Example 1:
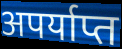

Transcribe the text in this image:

अपर्याप्त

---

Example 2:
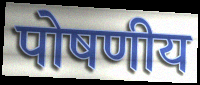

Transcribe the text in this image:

पोषणीय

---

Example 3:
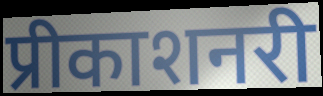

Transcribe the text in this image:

प्रीकाशनरी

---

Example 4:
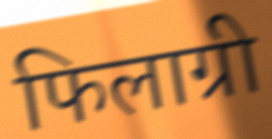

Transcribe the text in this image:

फिलाग्री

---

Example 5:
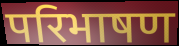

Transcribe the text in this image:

परिभाषण